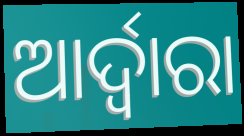
ଆର୍ଦ୍ୱାରା